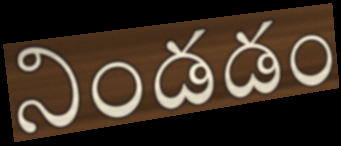
నిండడం